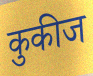
कुकीज